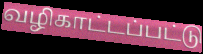
வழிகாட்டப்பட்டு